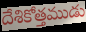
దేశికోత్తముడు